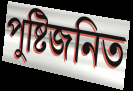
পুষ্টিজনিত